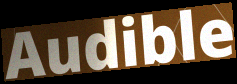
Audible